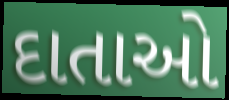
દાતાઓ